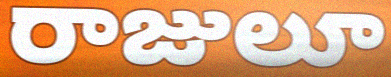
రాజులూ